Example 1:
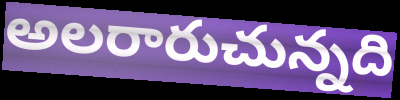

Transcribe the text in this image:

అలరారుచున్నది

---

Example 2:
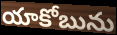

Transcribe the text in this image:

యాకోబును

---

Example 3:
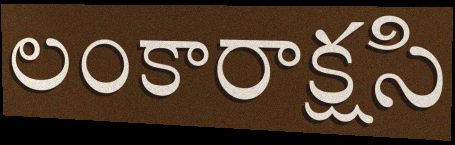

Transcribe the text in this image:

లంకారాక్షసి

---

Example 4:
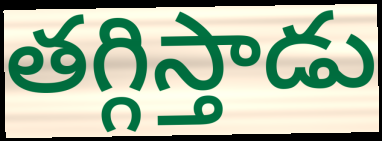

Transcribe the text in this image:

తగ్గిస్తాడు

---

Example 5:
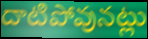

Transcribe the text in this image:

దాటిపోవునట్లు